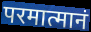
परमात्मानं